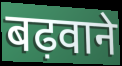
बढ़वाने